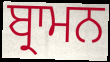
ਬ੍ਰਾਮਨ